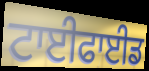
ਟਾਈਫਾਈਡ